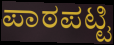
ಪಾಠಪಟ್ಟಿ